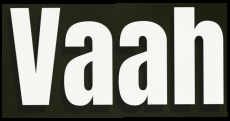
Vaah